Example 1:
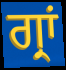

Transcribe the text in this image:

ਗ੍ਰਾਂ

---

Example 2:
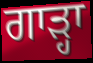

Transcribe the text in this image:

ਗਾੜ੍ਹਾ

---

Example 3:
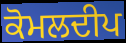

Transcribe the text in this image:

ਕੋਮਲਦੀਪ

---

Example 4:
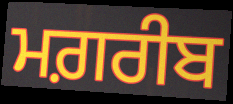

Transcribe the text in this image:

ਮਗ਼ਰੀਬ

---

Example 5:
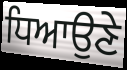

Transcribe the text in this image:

ਧਿਆਉਣੇ